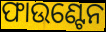
ଫାଉଣ୍ଟେନ